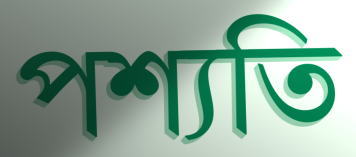
পশ্যতি